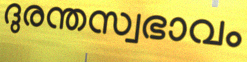
ദുരന്തസ്വഭാവം